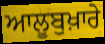
ਆਲੂਬੁਖ਼ਾਰੇ